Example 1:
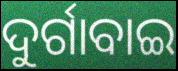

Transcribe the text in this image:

ଦୁର୍ଗାବାଇ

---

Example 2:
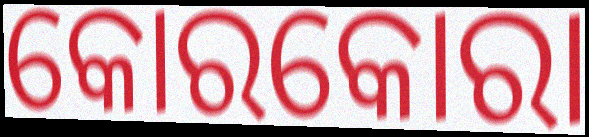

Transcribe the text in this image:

କୋରକୋରା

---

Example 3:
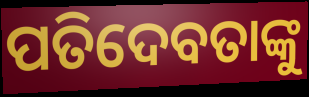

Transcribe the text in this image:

ପତିଦେବତାଙ୍କୁ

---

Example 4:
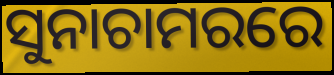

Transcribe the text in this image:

ସୁନାଚାମରରେ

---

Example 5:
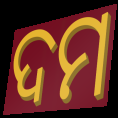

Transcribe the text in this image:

ଦମ